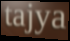
tajya